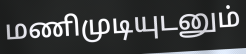
மணிமுடியுடனும்